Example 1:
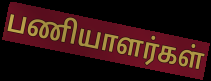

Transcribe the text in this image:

பணியாளர்கள்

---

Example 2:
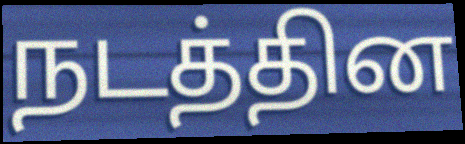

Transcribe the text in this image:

நடத்தின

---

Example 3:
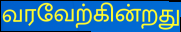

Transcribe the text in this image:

வரவேற்கின்றது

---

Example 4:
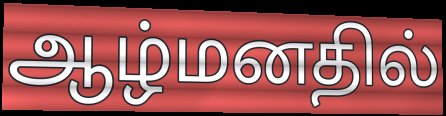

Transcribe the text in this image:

ஆழ்மனதில்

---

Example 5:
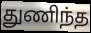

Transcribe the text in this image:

துணிந்த